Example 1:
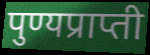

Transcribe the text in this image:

पुण्यप्राप्ती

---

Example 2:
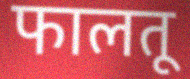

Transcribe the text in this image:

फालतू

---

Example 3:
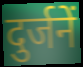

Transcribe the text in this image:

दुर्जनें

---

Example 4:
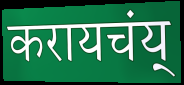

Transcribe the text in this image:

करायचंय्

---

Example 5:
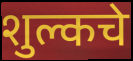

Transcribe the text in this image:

शुल्कचे